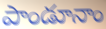
పాండూనాం